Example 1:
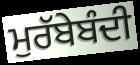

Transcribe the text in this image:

ਮੁਰੱਬੇਬੰਦੀ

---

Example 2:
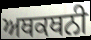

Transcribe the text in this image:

ਅਥਕਥਨੀ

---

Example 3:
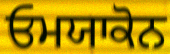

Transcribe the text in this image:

ਓਮਯਾਕੋਨ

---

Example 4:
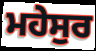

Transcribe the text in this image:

ਮਹੇਸੁਰ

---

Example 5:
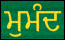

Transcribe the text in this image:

ਮੁਮੰਦ